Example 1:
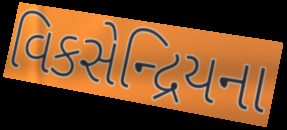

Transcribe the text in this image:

વિકસેન્દ્રિયના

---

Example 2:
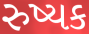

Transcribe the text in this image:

રુષ્યક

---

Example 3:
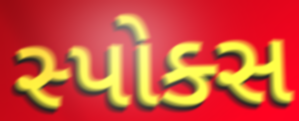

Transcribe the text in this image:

સ્પોક્સ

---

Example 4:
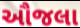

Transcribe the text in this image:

ઔજલા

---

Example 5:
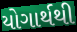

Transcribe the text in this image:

યોગાર્થથી